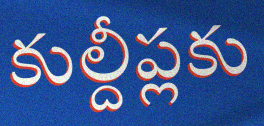
కుల్దీప్లకు